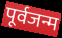
पूर्वजन्‍म